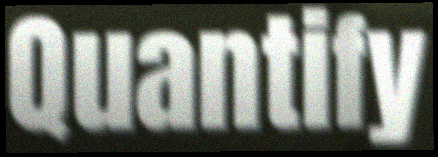
Quantify